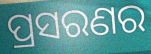
ପ୍ରସରଣର